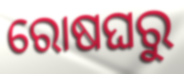
ରୋଷଘରୁ